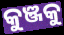
କୁଞ୍ଜକୁ